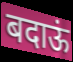
बदाऊं